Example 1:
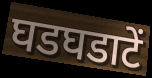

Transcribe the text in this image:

घडघडाटें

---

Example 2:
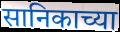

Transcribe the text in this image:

सानिकाच्या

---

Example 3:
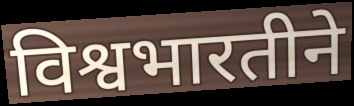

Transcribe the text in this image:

विश्वभारतीने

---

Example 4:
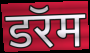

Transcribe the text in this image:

डरॅम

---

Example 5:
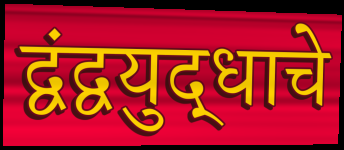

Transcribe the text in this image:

द्वंद्वयुद्धाचे